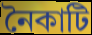
নৈকাটি